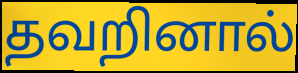
தவறினால்